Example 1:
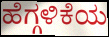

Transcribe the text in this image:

ಹೆಗ್ಗಳಿಕೆಯ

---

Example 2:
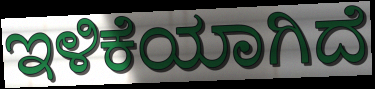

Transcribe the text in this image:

ಇಳಿಕೆಯಾಗಿದೆ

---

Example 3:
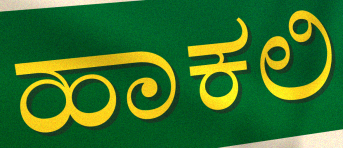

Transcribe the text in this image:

ಹಾಕಲಿ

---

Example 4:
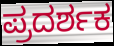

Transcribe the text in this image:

ಪ್ರದರ್ಶಕ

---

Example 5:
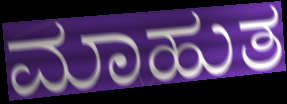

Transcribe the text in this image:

ಮಾಹುತ